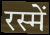
रस्‍में